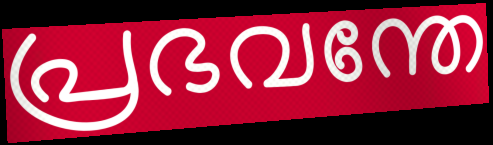
പ്രഭവന്തേ